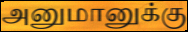
அனுமானுக்கு